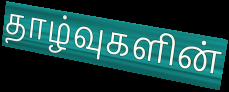
தாழ்வுகளின்